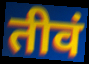
तीवं